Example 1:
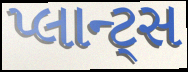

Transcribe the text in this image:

પ્લાન્ટ્સ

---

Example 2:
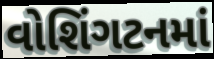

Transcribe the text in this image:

વોશિંગટનમાં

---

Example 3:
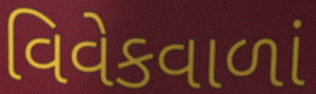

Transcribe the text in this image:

વિવેકવાળાં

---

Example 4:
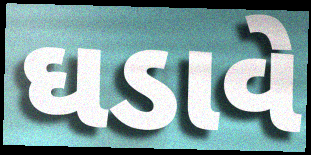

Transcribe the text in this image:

ઘડાવે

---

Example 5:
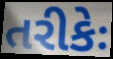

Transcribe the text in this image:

તરીકેઃ